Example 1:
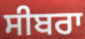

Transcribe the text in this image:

ਸੀਬਰਾ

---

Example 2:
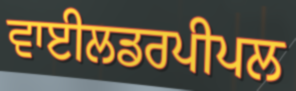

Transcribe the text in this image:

ਵਾਈਲਡਰਪੀਪਲ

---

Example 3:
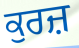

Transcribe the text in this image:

ਕੁਰਜ਼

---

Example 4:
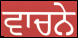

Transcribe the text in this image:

ਵਾਚਨੇ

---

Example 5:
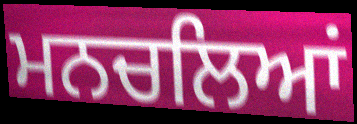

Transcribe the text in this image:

ਮਨਚਲਿਆਂ